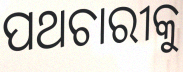
ପଥଚାରୀକୁ